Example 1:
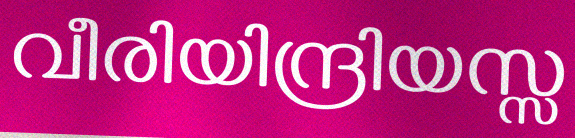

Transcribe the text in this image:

വീരിയിന്ദ്രിയസ്സ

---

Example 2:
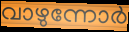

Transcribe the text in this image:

വാഴുന്നോർ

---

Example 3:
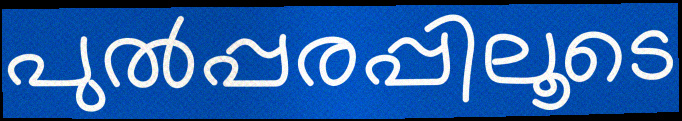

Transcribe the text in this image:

പുൽപ്പരപ്പിലൂടെ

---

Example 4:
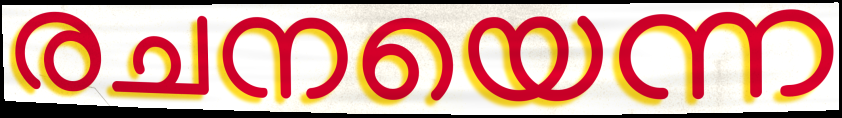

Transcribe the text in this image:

രചനയെന്ന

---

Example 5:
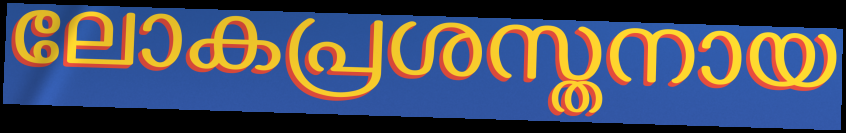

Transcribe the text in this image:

ലോകപ്രശസ്തനായ